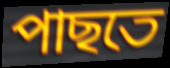
পাছতে